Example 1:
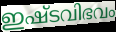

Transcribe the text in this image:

ഇഷ്ടവിഭവം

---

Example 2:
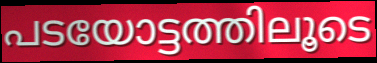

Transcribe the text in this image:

പടയോട്ടത്തിലൂടെ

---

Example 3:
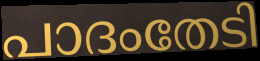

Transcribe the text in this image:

പാദംതേടി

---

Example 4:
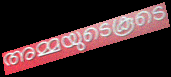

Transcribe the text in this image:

അമ്മയുടെകൂടെ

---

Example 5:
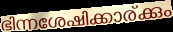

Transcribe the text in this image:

ഭിന്നശേഷിക്കാര്ക്കും